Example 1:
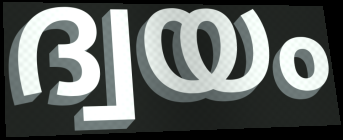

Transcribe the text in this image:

ദ്വയം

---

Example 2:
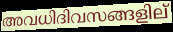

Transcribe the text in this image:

അവധിദിവസങ്ങളില്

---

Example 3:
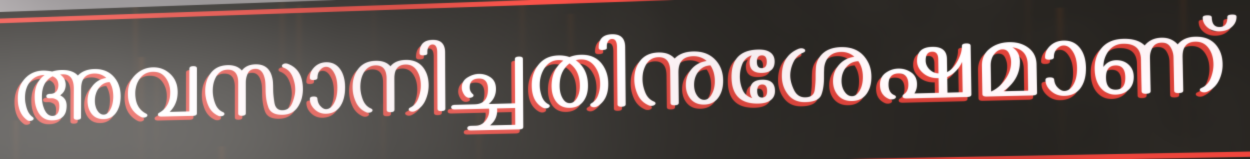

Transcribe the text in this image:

അവസാനിച്ചതിനുശേഷമാണ്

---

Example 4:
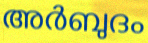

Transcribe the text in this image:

അർബുദം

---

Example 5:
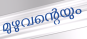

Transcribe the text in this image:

മുഴുവന്റെയും